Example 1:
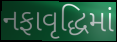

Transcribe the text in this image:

નફાવૃદ્ધિમાં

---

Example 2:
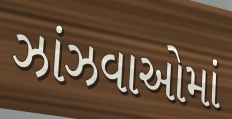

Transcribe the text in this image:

ઝાંઝવાઓમાં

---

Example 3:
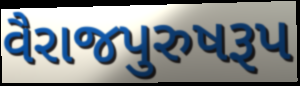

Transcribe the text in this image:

વૈરાજપુરુષરૂપ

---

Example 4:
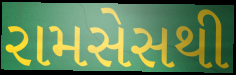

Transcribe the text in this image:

રામસેસથી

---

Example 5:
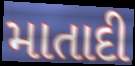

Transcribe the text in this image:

માતાદી